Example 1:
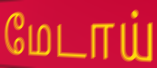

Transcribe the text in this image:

மேடாய்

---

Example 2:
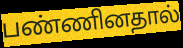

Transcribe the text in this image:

பண்ணினதால்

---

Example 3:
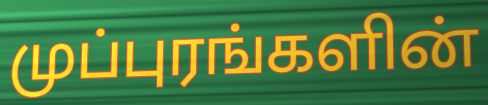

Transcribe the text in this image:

முப்புரங்களின்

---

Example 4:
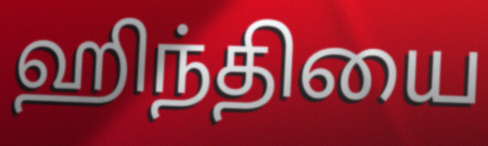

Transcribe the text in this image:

ஹிந்தியை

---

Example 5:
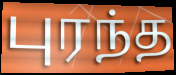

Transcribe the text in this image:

புரந்த